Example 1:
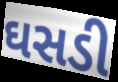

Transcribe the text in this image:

ઘસડી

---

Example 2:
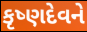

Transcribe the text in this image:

કૃષ્ણદેવને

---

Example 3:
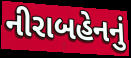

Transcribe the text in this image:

નીરાબહેનનું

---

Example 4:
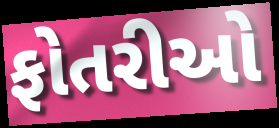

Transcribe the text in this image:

ફોતરીઓ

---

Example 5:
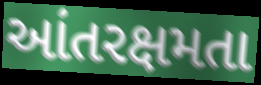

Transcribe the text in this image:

આંતરક્ષમતા